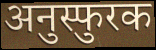
अनुस्फुरक